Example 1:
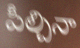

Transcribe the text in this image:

పీల్చినా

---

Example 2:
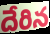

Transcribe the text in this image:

దేరిన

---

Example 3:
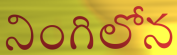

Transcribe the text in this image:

నింగిలోన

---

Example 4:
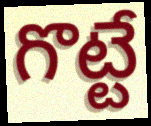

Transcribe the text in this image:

గొట్టే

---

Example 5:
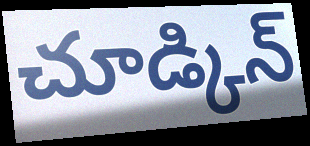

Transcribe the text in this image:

చూడ్కిన్